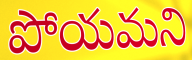
పోయమని